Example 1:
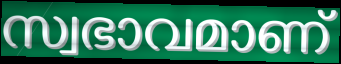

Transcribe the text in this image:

സ്വഭാവമാണ്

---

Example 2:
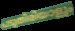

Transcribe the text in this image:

പടുതിരിയാളും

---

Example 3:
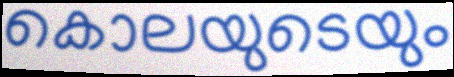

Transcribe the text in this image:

കൊലയുടെയും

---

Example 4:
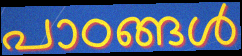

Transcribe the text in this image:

പാഠങ്ങൾ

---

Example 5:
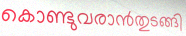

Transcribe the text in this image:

കൊണ്ടുവരാൻതുടങ്ങി